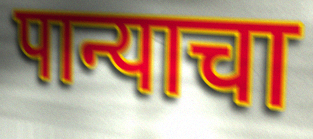
पान्याचा